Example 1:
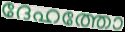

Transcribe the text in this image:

ദേഹത്തോ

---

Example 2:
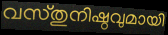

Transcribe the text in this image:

വസ്തുനിഷ്ഠവുമായി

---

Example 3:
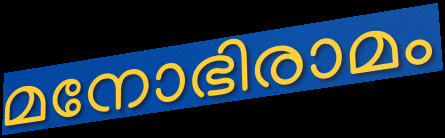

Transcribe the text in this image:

മനോഭിരാമം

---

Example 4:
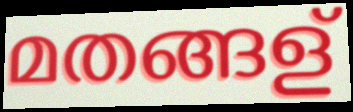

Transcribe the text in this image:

മതങ്ങള്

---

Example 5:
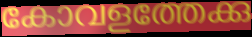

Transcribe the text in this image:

കോവളത്തേക്കു